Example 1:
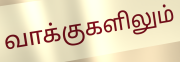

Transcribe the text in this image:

வாக்குகளிலும்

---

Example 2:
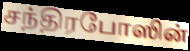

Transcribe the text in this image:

சந்திரபோஸின்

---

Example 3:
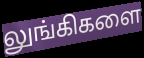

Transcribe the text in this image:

லுங்கிகளை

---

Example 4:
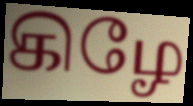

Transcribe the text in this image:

கிழே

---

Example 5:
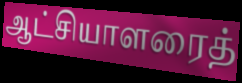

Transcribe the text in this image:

ஆட்சியாளரைத்